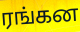
ரங்கன